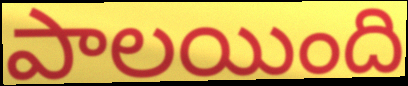
పాలయింది